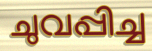
ചുവപ്പിച്ച